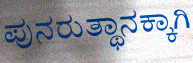
ಪುನರುತ್ಥಾನಕ್ಕಾಗಿ